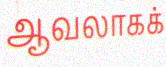
ஆவலாகக்